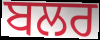
ਬਲਰ